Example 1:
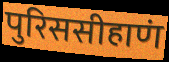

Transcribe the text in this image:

पुरिससीहाणं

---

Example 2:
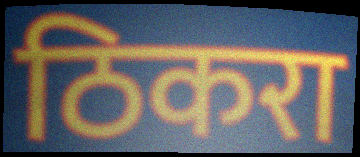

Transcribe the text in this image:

ठिकरा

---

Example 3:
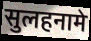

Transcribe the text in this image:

सुलहनामे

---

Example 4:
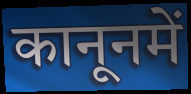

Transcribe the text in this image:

कानूनमें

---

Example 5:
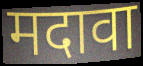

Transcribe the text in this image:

मदावा